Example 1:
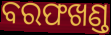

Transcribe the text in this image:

ବରଫଖଣ୍ଡ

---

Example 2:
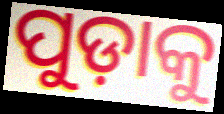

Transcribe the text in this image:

ପୁଡ଼ାକୁ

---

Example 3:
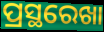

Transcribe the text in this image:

ପ୍ରସ୍ଥରେଖା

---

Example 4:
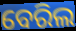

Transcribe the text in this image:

ବେରିଲ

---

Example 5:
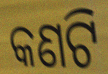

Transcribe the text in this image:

କଣଟି